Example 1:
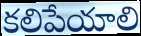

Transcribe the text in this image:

కలిపేయాలి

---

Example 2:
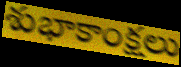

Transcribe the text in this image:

శుభాకాంక్షలు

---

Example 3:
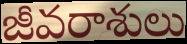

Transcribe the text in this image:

జీవరాశులు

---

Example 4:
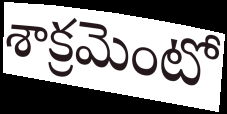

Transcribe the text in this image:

శాక్రమెంటో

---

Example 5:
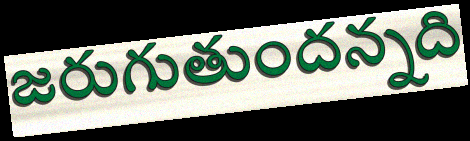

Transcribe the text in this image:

జరుగుతుందన్నది